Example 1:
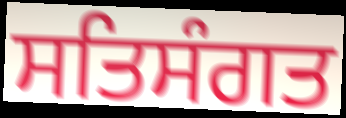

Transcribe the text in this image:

ਸਤਿਸੰਗਤ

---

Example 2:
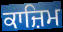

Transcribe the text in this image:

ਕਾਜ਼ਿਮ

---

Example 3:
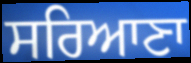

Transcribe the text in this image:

ਸਰਿਆਣਾ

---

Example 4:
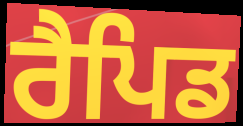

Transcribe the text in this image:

ਰੈਪਿਡ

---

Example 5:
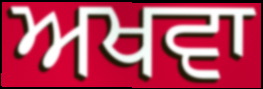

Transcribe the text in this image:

ਅਖਵਾ